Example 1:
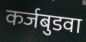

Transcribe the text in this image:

कर्जबुडवा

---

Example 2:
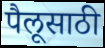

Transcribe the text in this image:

पैलूसाठी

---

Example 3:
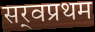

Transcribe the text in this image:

सर्वप्रथम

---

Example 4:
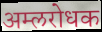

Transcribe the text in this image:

अम्लरोधक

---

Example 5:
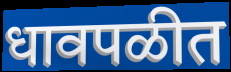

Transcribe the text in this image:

धावपळीत